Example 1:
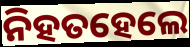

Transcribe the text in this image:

ନିହତହେଲେ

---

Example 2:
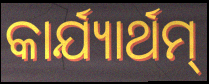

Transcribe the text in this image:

କାର୍ଯ୍ୟାର୍ଥମ୍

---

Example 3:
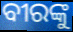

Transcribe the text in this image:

ବୀରଙ୍କୁ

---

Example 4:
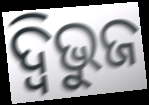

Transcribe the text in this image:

ଦ୍ଵିଭୁଜ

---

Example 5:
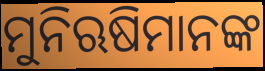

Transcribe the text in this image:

ମୁନିଋଷିମାନଙ୍କ